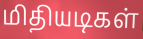
மிதியடிகள்